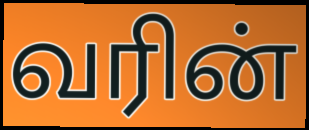
வரின்